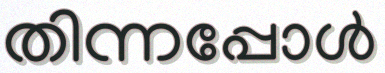
തിന്നപ്പോൾ